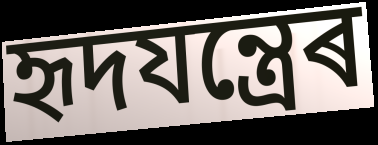
হৃদযন্ত্ৰেৰ